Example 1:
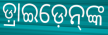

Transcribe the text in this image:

ଡ଼୍ରାଇଡ଼େନ୍‌ଙ୍କ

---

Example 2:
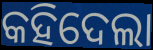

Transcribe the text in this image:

କହିଦେଲା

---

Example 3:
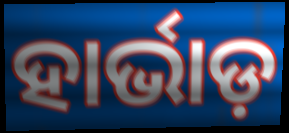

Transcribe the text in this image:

ହାର୍ଭାଡ଼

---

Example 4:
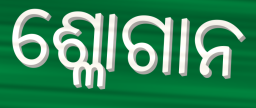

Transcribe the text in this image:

ଶ୍ଳୋଗାନ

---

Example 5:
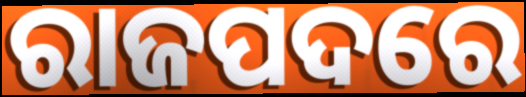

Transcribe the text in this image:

ରାଜପଦରେ